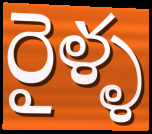
రైళ్ళ